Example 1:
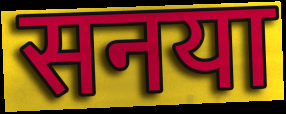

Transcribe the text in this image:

सनया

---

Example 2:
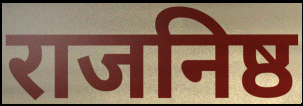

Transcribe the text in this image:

राजनिष्ठ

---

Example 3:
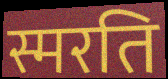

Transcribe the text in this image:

स्मरति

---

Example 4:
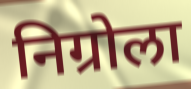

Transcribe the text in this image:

निग्रोला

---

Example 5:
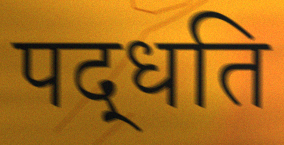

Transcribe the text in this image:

पद्धति